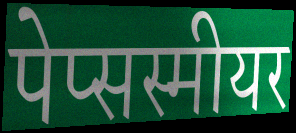
पेप्सस्मीयर